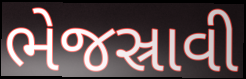
ભેજસ્રાવી